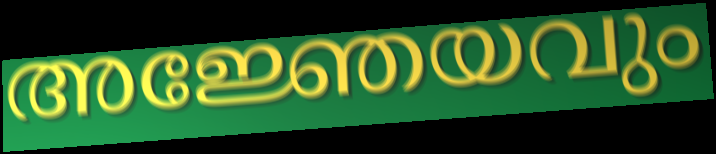
അജ്ഞേയവും